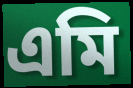
এমি